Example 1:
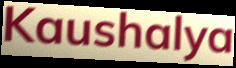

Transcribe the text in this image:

Kaushalya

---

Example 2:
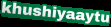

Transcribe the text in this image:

khushiyaaytu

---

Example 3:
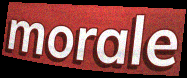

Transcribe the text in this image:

morale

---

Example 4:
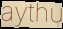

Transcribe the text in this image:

aythu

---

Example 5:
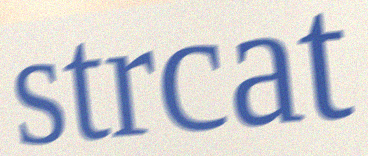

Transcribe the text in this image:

strcat